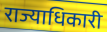
राज्याधिकारी